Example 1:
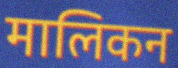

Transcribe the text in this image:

मालिकन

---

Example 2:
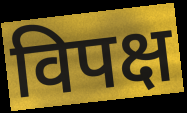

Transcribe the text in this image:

विपक्ष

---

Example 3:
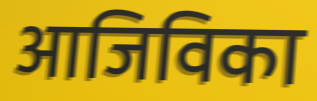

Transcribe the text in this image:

आजिविका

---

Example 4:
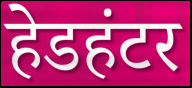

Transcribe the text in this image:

हेडहंटर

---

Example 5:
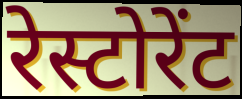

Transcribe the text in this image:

रेस्टोरेंट